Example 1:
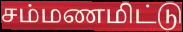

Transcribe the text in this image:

சம்மணமிட்டு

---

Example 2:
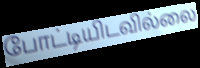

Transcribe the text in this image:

போட்டியிடவில்லை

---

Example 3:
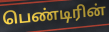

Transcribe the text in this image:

பெண்டிரின்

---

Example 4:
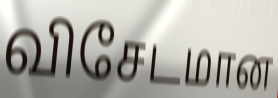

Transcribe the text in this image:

விசேடமான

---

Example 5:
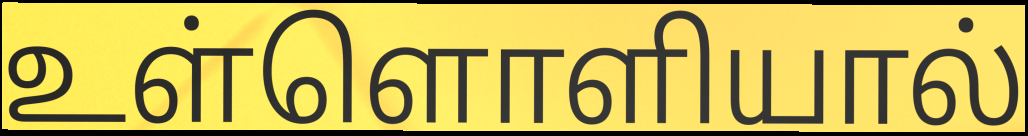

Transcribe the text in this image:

உள்ளொளியால்